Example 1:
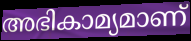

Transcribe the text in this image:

അഭികാമ്യമാണ്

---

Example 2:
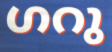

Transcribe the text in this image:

ഗറു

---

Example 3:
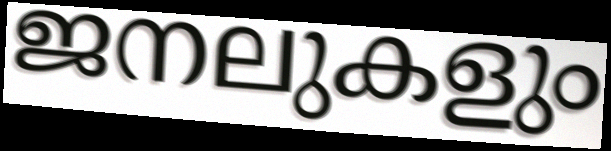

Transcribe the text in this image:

ജനലുകളും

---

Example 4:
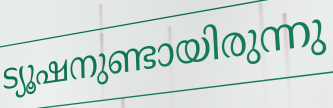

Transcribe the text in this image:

ട്യൂഷനുണ്ടായിരുന്നു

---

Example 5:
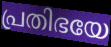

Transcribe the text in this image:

പ്രതിഭയേ